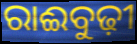
ରାଈବୁଢ଼ୀ